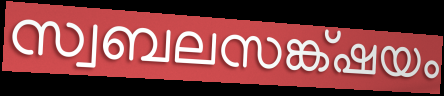
സ്വബലസങ്ക്ഷയം